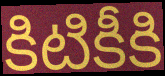
కిటికీకి